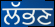
ਲੱਭਣ